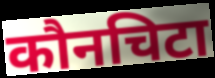
कौनचिटा